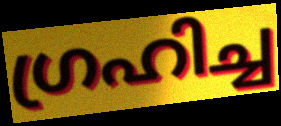
ഗ്രഹിച്ച